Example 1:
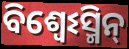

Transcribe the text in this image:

ବିଶ୍ଵେଽସ୍ମିନ୍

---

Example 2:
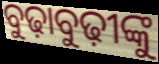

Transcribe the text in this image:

ବୁଢ଼ାବୁଢ଼ୀଙ୍କୁ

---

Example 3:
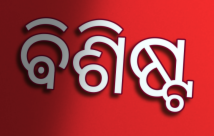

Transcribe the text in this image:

ଵିଶିଷ୍ଟ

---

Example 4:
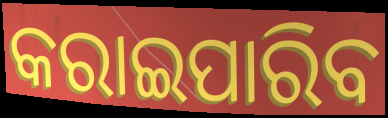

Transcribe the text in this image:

କରାଇପାରିବ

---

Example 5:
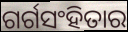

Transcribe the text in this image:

ଗର୍ଗସଂହିତାର